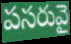
పసరువై